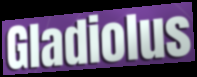
Gladiolus